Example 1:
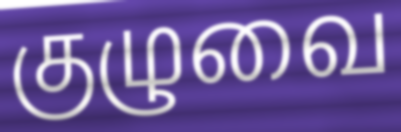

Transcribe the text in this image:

குழுவை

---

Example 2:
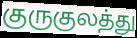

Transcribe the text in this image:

குருகுலத்து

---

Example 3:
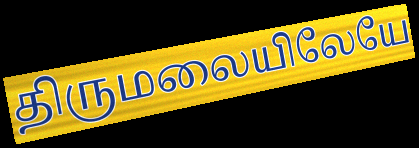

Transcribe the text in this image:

திருமலையிலேயே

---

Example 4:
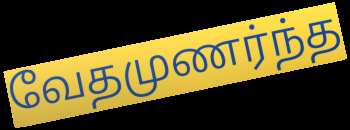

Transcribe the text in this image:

வேதமுணர்ந்த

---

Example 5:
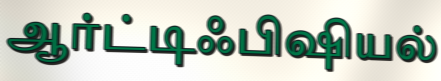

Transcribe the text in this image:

ஆர்ட்டிஃபிஷியல்